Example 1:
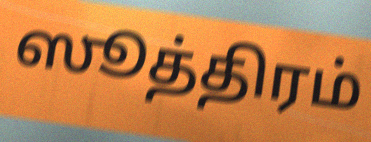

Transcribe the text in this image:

ஸூத்திரம்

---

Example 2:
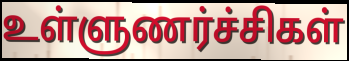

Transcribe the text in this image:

உள்ளுணர்ச்சிகள்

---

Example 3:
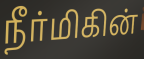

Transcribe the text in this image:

நீர்மிகின்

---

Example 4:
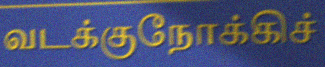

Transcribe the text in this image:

வடக்குநோக்கிச்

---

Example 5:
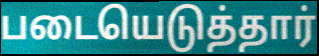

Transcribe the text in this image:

படையெடுத்தார்